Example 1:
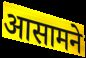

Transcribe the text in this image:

आसामने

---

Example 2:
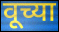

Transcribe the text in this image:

वूच्या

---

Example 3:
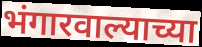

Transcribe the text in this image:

भंगारवाल्याच्या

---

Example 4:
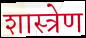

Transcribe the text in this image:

शास्त्रेण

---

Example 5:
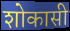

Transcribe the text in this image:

शोकासी